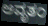
ಆವೃತಂ